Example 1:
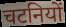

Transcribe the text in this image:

चटनियों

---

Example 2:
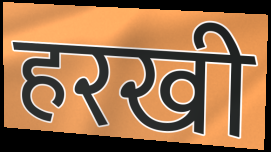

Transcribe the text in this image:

हरखी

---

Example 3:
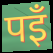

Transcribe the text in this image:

पइँ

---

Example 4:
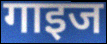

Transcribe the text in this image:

गाइज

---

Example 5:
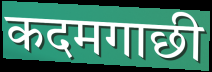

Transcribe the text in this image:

कदमगाछी